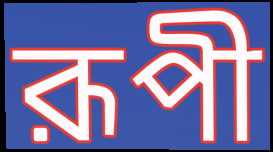
রূপী